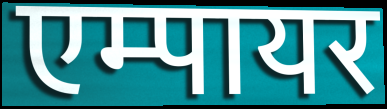
एम्पायर